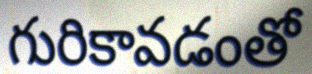
గురికావడంతో